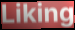
Liking